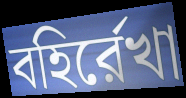
বহির্রেখা